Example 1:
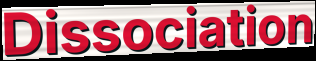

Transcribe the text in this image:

Dissociation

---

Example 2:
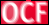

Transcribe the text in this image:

OCF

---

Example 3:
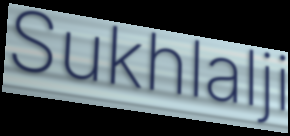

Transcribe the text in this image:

Sukhlalji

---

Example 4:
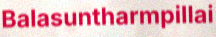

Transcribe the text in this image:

Balasuntharmpillai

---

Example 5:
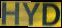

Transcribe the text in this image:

HYD